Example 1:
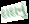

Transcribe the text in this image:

દાદાનું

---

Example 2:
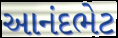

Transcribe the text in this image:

આનંદભેટ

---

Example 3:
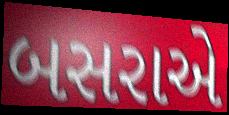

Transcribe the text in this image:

બસરાએ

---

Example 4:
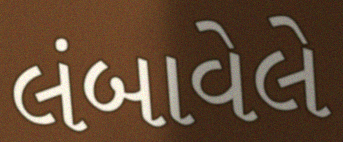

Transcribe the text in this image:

લંબાવેલે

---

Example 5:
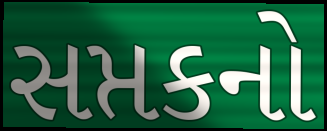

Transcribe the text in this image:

સપ્તકનો